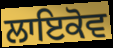
ਲਾਇਕੋਵ